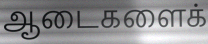
ஆடைகளைக்